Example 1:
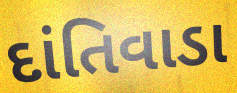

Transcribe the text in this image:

દાંતિવાડા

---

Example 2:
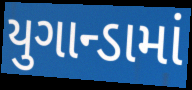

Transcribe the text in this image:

યુગાન્ડામાં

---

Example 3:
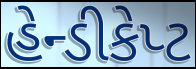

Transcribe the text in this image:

હેન્ડીકેપ્ટ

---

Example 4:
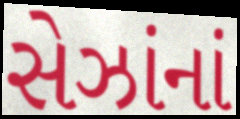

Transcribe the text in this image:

સેઝાંનાં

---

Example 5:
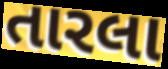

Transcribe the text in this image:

તારલા